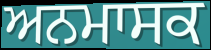
ਅਨਮਾਸਕ